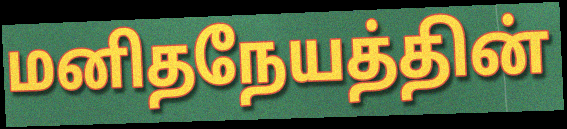
மனிதநேயத்தின்